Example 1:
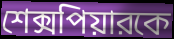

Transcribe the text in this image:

শেক্সপিয়ারকে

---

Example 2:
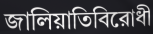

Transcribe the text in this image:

জালিয়াতিবিরোধী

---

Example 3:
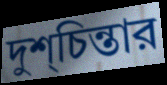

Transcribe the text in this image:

দুশ্‌চিন্তার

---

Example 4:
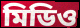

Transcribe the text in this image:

মিডিও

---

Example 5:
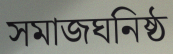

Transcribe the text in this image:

সমাজঘনিষ্ঠ